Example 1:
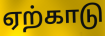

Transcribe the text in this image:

ஏற்காடு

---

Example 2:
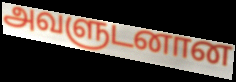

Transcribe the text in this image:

அவளுடனான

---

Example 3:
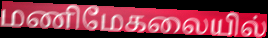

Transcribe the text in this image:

மணிமேகலையில்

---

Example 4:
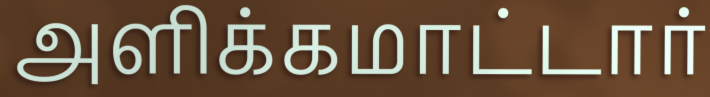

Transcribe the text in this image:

அளிக்கமாட்டார்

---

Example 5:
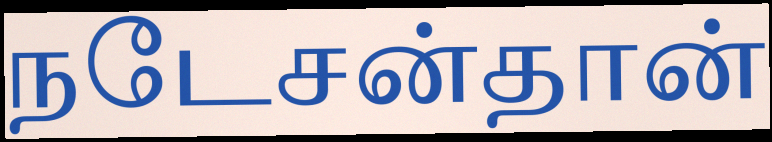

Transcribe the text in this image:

நடேசன்தான்